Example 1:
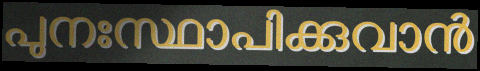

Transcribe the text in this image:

പുനഃസ്ഥാപിക്കുവാൻ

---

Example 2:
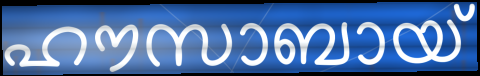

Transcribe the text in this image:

ഹൗസാബായ്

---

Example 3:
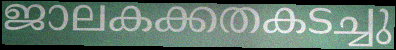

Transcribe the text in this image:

ജാലകക്കതകടച്ചു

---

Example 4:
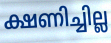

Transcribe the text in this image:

ക്ഷണിച്ചില്ല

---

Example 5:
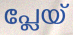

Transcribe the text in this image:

പ്ലേയ്